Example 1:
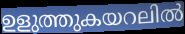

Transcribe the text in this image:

ഉളുത്തുകയറലിൽ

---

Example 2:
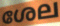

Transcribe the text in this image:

ശേല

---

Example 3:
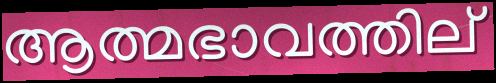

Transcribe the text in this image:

ആത്മഭാവത്തില്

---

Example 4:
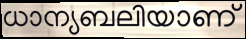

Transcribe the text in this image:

ധാന്യബലിയാണ്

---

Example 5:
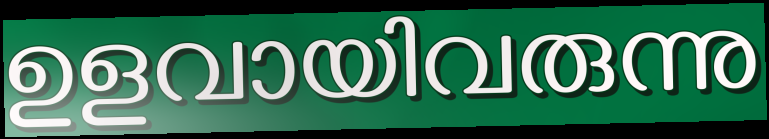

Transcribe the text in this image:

ഉളവായിവരുന്നു